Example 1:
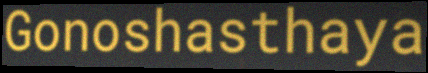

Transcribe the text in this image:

Gonoshasthaya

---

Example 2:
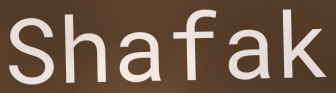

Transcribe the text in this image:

Shafak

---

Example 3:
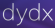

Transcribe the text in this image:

dydx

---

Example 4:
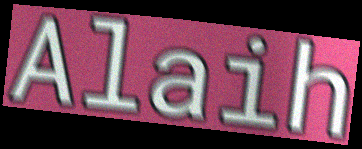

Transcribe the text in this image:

Alaih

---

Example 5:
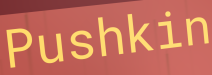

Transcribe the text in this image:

Pushkin